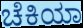
ಚೆಕಿಯಾ